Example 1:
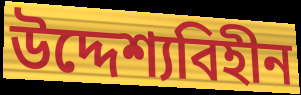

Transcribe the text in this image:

উদ্দেশ্যবিহীন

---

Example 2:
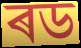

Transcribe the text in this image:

ৰড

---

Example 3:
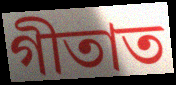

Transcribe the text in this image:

গীতাত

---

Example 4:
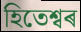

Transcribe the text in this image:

হিতেশ্বৰ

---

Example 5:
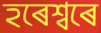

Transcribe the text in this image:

হৰেশ্বৰে